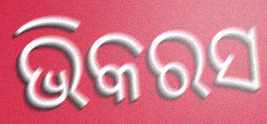
ଭିକରସ